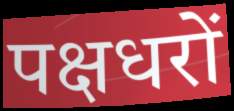
पक्षधरों